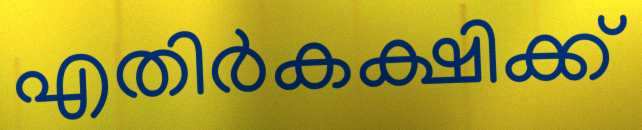
എതിർകക്ഷിക്ക്